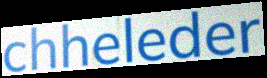
chheleder